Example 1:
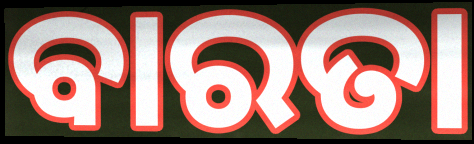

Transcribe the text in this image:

ବାରତା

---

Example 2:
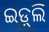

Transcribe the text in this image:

ଇଡ଼୍‌ଲି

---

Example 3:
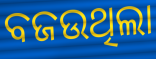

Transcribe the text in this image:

ବଜଉଥିଲା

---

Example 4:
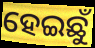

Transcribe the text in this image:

ହେଇଛୁଁ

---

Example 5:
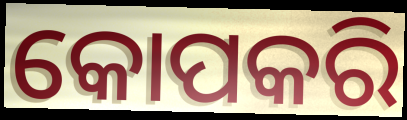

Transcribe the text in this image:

କୋପକରି